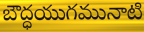
బౌద్ధయుగమునాటి